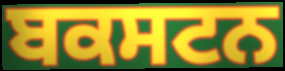
ਬਕਸਟਨ